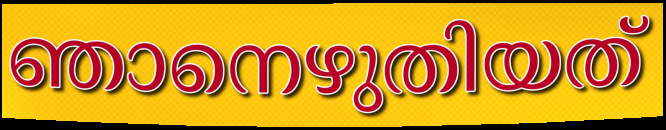
ഞാനെഴുതിയത്